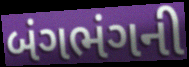
બંગભંગની